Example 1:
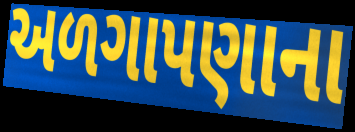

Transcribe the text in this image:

અળગાપણાના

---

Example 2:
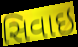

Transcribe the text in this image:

સિવાઇ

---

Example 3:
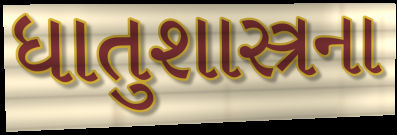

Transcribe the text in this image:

ધાતુશાસ્ત્રના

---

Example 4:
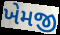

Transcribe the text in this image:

ખેમજી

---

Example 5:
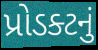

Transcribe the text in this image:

પ્રોડક્ટનું